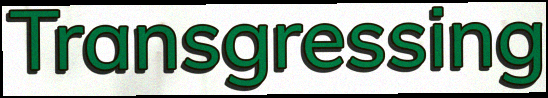
Transgressing